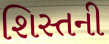
શિસ્તની